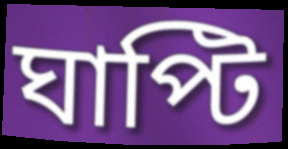
ঘাপ্টি